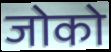
जोको